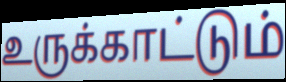
உருக்காட்டும்